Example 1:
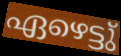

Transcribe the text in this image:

ഏഴെട്ടു്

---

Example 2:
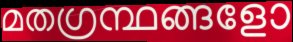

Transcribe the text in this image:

മതഗ്രന്ഥങ്ങളോ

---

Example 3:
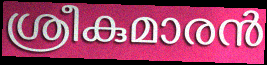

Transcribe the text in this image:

ശ്രീകുമാരൻ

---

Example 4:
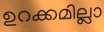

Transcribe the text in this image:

ഉറക്കമില്ലാ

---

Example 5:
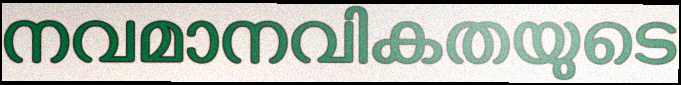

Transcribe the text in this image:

നവമാനവികതയുടെ